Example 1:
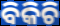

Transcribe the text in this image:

ବିକିଚି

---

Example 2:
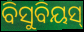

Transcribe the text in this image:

ବିସୁବିୟସ୍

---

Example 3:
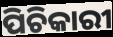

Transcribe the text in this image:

ପିଚିକାରୀ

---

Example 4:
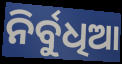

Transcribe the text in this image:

ନିର୍ବୁଧିଆ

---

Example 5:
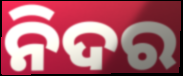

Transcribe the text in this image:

ନିଦର